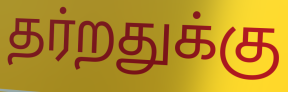
தர்றதுக்கு